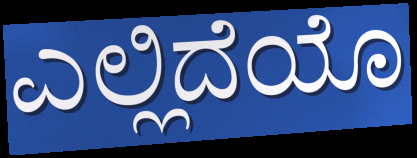
ಎಲ್ಲಿದೆಯೊ